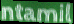
ntamil